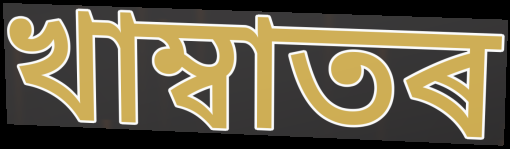
খাম্বাতৰ